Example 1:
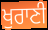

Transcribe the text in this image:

ਖੁਰਾਣੀ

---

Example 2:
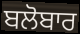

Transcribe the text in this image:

ਬਲੋਬਾਰ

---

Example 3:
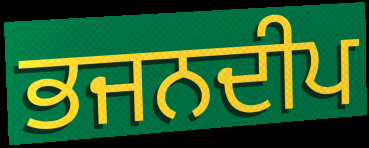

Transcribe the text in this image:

ਭਜਨਦੀਪ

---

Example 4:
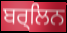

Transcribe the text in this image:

ਬਰ੍ਲਿਨ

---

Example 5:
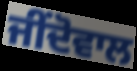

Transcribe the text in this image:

ਜੀਂਦੋਵਾਲ